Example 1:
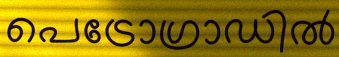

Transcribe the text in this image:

പെട്രോഗ്രാഡിൽ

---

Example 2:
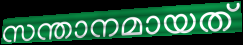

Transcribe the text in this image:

സന്താനമായത്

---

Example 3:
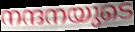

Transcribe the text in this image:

നന്ദനയുടെ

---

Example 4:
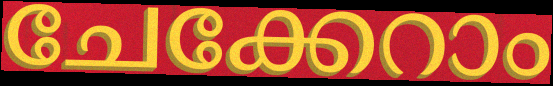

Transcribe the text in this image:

ചേക്കേറാം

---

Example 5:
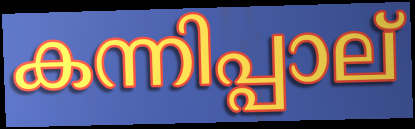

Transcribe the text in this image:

കന്നിപ്പാല്